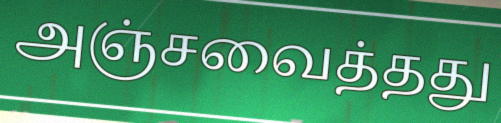
அஞ்சவைத்தது